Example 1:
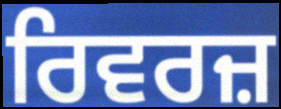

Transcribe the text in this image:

ਰਿਵਰਜ਼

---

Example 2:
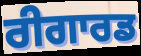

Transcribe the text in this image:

ਰੀਗਾਰਡ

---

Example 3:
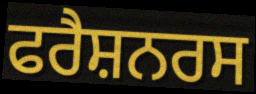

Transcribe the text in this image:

ਫਰੈਸ਼ਨਰਸ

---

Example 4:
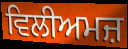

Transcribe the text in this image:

ਵਿਲੀਅਮਜ਼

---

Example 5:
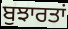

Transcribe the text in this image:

ਬੁਝਾਰਤਾਂ